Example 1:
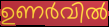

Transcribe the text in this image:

ഉണർവിൽ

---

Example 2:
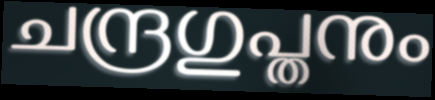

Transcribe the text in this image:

ചന്ദ്രഗുപ്തനും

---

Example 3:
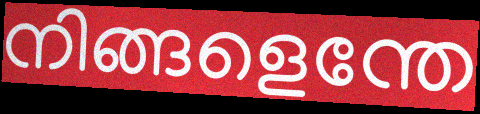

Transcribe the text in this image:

നിങ്ങളെന്തേ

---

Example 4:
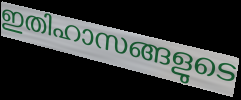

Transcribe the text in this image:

ഇതിഹാസങ്ങളുടെ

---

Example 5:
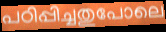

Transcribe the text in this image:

പഠിപ്പിച്ചതുപോലെ